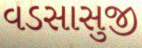
વડસાસુજી